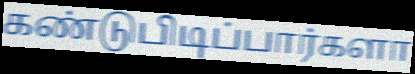
கண்டுபிடிப்பார்களா